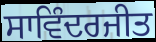
ਸਾਵਿੰਦਰਜੀਤ